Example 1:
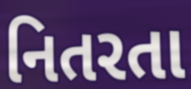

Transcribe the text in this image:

નિતરતા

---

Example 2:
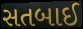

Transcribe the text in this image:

સતબાઈ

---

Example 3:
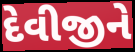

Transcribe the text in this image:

દેવીજીને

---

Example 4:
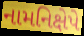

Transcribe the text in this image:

નામનિક્ષેપે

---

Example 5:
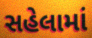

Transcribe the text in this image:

સહેલામાં